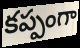
కప్పంగా